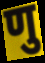
णु